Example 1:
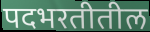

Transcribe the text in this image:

पदभरतीतील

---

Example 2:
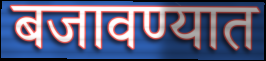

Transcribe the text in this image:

बजावण्यात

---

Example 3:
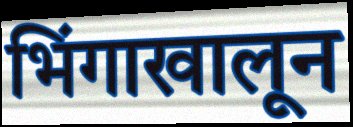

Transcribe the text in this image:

भिंगाखालून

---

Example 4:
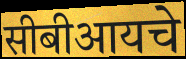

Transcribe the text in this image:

सीबीआयचे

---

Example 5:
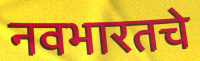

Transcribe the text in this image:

नवभारतचे